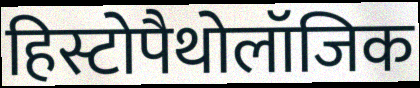
हिस्टोपैथोलॉजिक